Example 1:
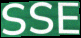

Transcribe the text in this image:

SSE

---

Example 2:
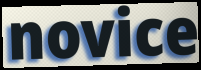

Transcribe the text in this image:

novice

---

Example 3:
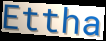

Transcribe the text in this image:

Ettha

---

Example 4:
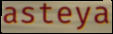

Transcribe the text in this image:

asteya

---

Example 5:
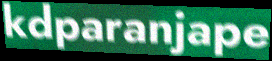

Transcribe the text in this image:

kdparanjape